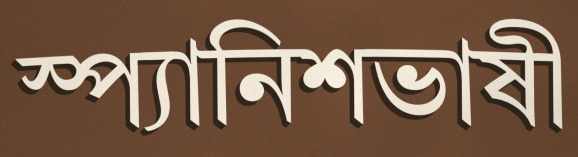
স্প্যানিশভাষী